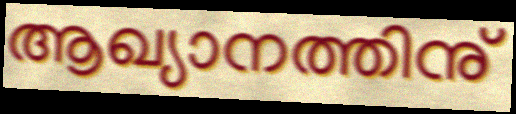
ആഖ്യാനത്തിനു്